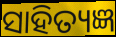
ସାହିତ୍ୟଜ୍ଞ